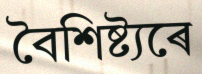
বৈশিষ্ট্যৰে